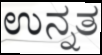
ಉನ್ನತ